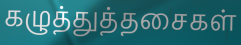
கழுத்துத்தசைகள்